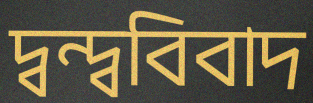
দ্বন্দ্ববিবাদ